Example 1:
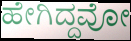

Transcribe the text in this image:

ಹೇಗಿದ್ದವೋ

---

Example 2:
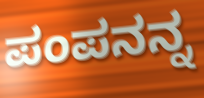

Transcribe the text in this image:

ಪಂಪನನ್ನ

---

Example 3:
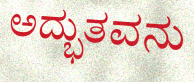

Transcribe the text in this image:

ಅದ್ಭುತವನು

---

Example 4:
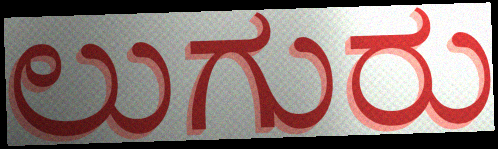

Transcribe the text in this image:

ಲುಗುರು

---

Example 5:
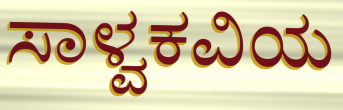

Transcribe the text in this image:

ಸಾಳ್ವಕವಿಯ